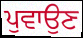
ਪੁਵਾਉਣ